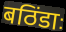
बठिंडाः